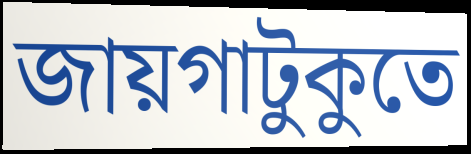
জায়গাটুকুতে